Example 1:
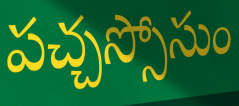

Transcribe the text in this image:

పచ్చస్సోసుం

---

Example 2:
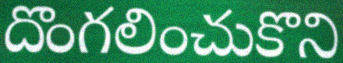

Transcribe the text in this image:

దొంగలించుకొని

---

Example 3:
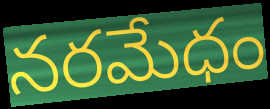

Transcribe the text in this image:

నరమేధం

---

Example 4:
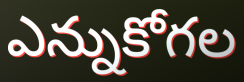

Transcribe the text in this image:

ఎన్నుకోగల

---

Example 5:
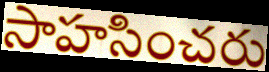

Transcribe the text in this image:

సాహసించరు